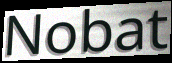
Nobat